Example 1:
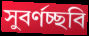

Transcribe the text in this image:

সুবর্ণচ্ছবি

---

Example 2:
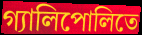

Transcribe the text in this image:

গ্যালিপোলিতে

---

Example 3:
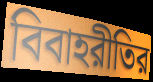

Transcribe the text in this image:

বিবাহরীতির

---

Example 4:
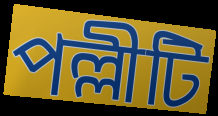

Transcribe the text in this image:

পল্লীটি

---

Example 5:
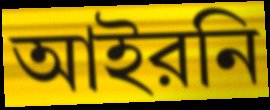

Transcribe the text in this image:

আইরনি